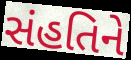
સંહતિને